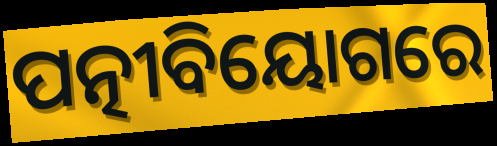
ପତ୍ନୀବିୟୋଗରେ